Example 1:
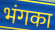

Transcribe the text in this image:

भंगका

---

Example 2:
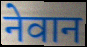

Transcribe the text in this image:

नेवान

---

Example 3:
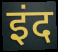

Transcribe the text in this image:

इंद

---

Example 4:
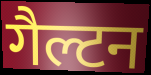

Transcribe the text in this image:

गैल्टन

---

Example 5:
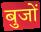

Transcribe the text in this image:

बुजों